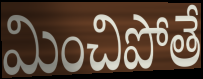
మించిపోతే